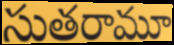
సుతరామూ